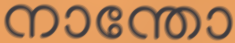
നാന്തോ